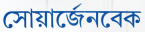
সোয়ার্জেনবেক